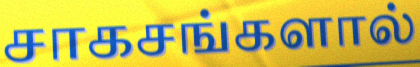
சாகசங்களால்